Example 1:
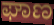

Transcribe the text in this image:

ಘಾಣ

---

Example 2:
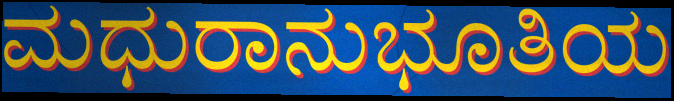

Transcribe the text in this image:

ಮಧುರಾನುಭೂತಿಯ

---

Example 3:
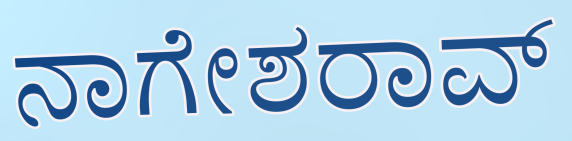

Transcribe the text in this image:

ನಾಗೇಶರಾವ್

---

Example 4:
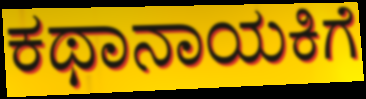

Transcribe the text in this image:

ಕಥಾನಾಯಕಿಗೆ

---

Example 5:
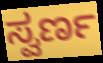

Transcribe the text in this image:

ಸ್ವರ್ಣ